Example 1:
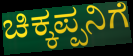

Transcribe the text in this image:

ಚಿಕ್ಕಪ್ಪನಿಗೆ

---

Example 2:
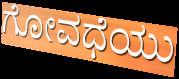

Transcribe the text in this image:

ಗೋವಧೆಯು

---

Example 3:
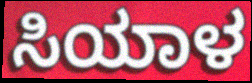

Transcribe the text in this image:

ಸಿಯಾಳ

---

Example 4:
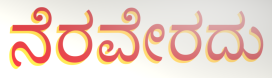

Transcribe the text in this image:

ನೆರವೇರದು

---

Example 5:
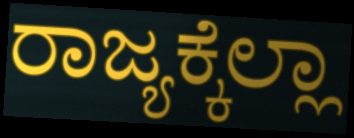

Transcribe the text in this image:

ರಾಜ್ಯಕ್ಕೆಲ್ಲಾ